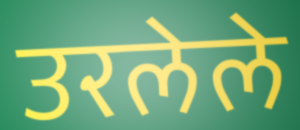
उरलेले